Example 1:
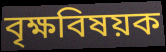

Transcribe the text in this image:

বৃক্ষবিষয়ক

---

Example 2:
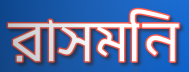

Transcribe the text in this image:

রাসমনি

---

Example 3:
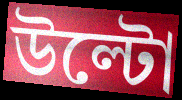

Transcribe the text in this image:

উল্টো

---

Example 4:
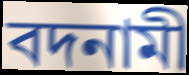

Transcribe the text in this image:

বদনামী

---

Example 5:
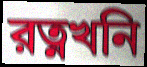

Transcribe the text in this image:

রত্নখনি